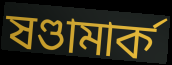
ষণ্ডামার্ক